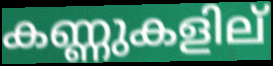
കണ്ണുകളില്